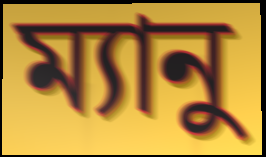
ম্যানু